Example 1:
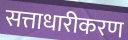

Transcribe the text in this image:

सत्ताधारीकरण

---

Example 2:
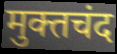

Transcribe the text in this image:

मुक्तचंद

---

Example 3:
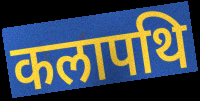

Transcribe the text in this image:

कलापथि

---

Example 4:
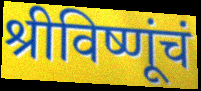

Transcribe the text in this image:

श्रीविष्णूंचं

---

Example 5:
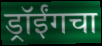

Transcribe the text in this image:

ड्रॉईंगचा